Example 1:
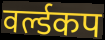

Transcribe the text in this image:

वर्ल्‍डकप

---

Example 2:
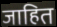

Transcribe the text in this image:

जाहित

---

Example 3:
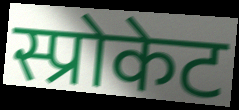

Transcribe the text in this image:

स्प्रोकेट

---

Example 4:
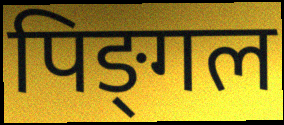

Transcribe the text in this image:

पिङ्गल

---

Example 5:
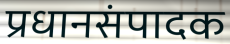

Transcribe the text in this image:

प्रधानसंपादक